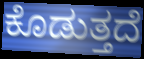
ಕೊಡುತ್ತದೆ